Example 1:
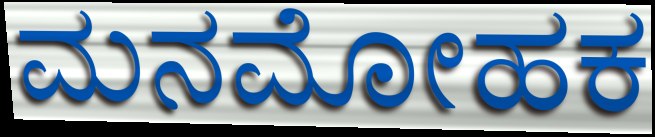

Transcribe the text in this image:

ಮನಮೋಹಕ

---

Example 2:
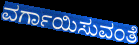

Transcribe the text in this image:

ವರ್ಗಾಯಿಸುವಂತೆ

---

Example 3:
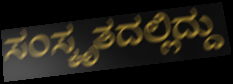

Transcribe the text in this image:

ಸಂಸ್ಕೃತದಲ್ಲಿದ್ದು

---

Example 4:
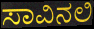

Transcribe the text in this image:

ಸಾವಿನಲಿ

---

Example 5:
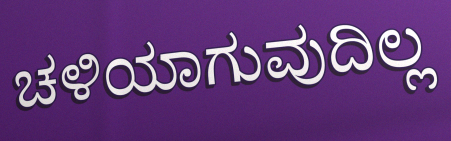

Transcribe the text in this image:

ಚಳಿಯಾಗುವುದಿಲ್ಲ